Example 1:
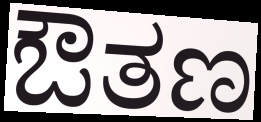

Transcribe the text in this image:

ಔತಣ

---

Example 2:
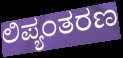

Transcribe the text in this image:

ಲಿಪ್ಯಂತರಣ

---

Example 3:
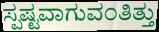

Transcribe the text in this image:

ಸ್ಪಷ್ಟವಾಗುವಂತಿತ್ತು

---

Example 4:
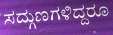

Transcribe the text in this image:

ಸದ್ಗುಣಗಳಿದ್ದರೂ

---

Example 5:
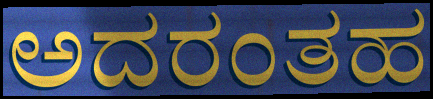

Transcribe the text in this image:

ಅದರಂತಹ